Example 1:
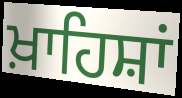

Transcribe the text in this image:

ਖ਼ਾਹਿਸ਼ਾਂ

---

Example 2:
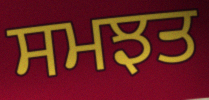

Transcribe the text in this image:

ਸਮਝਤ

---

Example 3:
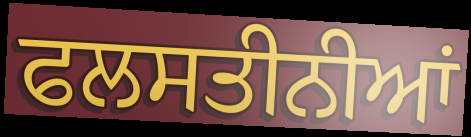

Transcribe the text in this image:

ਫਲਸਤੀਨੀਆਂ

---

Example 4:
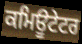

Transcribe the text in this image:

ਕਮਿਊਟੇਟਰ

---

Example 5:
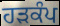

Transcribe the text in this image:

ਹੜਕੰਪ